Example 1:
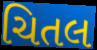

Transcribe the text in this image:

ચિતલ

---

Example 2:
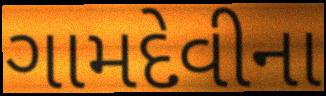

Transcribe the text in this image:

ગામદેવીના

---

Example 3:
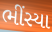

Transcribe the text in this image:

ભીંસ્યા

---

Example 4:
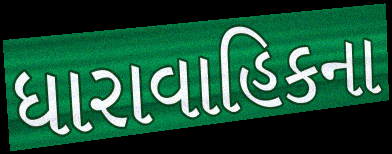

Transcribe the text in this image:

ધારાવાહિકના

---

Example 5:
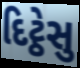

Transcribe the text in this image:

દિટ્ઠેસુ